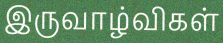
இருவாழ்விகள்